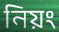
নিয়ং